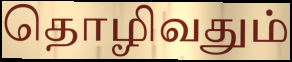
தொழிவதும்